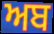
ਅਬ